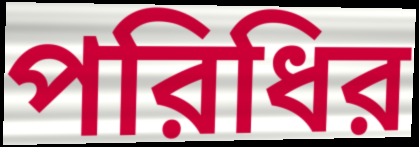
পরিধির